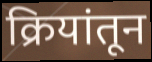
क्रियांतून